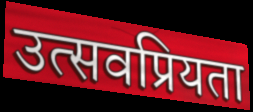
उत्सवप्रियता